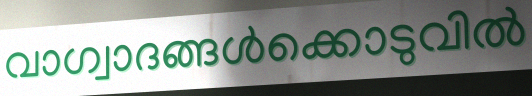
വാഗ്വാദങ്ങൾക്കൊടുവിൽ